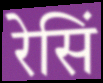
रेसिं